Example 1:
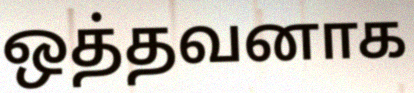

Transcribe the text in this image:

ஒத்தவனாக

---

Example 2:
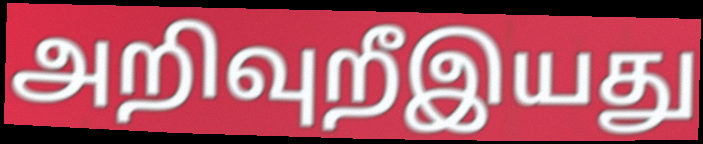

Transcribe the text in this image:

அறிவுறீஇயது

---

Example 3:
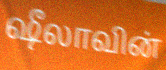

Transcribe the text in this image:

ஷீலாவின்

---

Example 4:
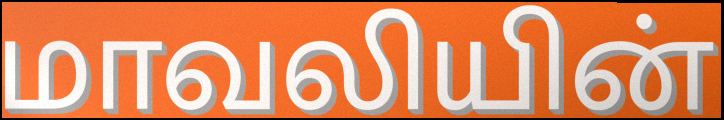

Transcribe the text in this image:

மாவலியின்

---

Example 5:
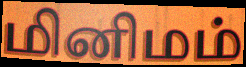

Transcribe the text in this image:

மினிமம்